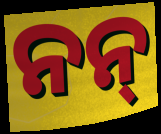
ନନ୍